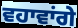
ਵਹਾਵਾਂਗੇ